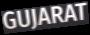
GUJARAT